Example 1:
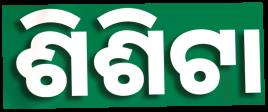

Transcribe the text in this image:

ଶିଶିଟା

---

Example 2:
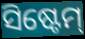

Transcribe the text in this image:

ସିଷ୍ଟେମ୍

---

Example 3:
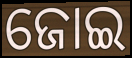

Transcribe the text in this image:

ଜୋଇ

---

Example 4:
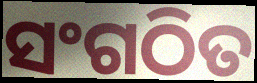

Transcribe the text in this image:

ସଂଗଠିତ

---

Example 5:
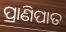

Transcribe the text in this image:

ପ୍ରାଣିପାତ